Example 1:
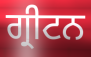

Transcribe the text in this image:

ਗ੍ਰੀਟਨ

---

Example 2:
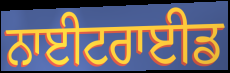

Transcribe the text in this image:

ਨਾਈਟਰਾਈਡ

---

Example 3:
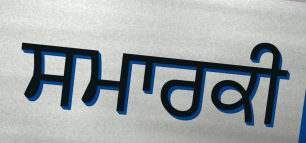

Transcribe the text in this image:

ਸਮਾਰਕੀ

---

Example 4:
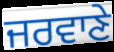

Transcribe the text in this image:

ਜਰਵਾਣੇ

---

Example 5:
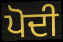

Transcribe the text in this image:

ਪੋਦੀ